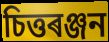
চিত্তৰঞ্জন